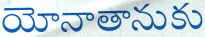
యోనాతానుకు